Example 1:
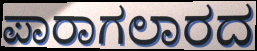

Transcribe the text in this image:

ಪಾರಾಗಲಾರದ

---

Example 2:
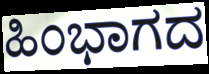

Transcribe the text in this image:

ಹಿಂಭಾಗದ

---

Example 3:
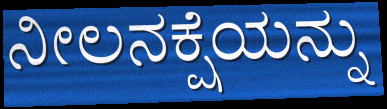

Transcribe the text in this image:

ನೀಲನಕ್ಷೆಯನ್ನು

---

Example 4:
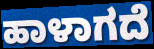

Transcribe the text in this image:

ಹಾಳಾಗದೆ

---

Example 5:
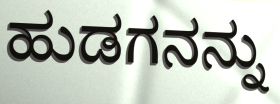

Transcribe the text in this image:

ಹುಡಗನನ್ನು